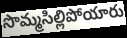
సొమ్మసిల్లిపోయారు